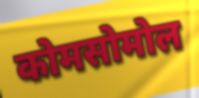
कोमसोमोल